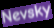
Nevsky